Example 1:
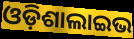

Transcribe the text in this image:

ଓଡ଼ିଶାଲାଇଭ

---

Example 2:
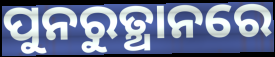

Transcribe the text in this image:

ପୁନରୁତ୍ଥାନରେ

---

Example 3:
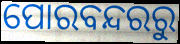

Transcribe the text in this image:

ପୋରବନ୍ଦରରୁ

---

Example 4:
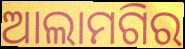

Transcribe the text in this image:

ଆଲାମଗିର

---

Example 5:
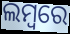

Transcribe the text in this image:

ଲମ୍ବରେ